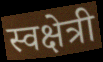
स्वक्षेत्री